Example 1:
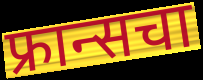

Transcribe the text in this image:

फ्रान्सचा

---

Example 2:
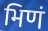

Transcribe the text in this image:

भिणं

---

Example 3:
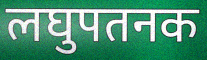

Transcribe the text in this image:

लघुपतनक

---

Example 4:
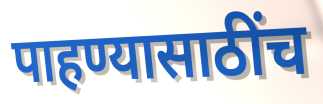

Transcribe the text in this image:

पाहण्यासाठींच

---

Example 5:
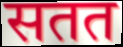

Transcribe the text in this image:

सतत